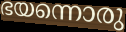
ഭയന്നൊരു